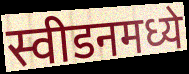
स्वीडनमध्ये